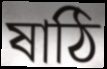
ষাঠি